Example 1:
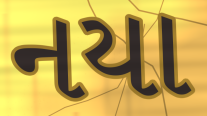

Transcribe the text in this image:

નયા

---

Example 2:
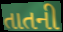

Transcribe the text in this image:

તાતની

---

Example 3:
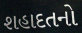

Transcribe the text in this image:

શહાદતનો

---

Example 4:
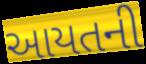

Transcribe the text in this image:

આયતની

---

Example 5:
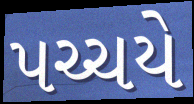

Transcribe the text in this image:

પચ્ચયે